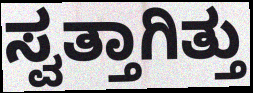
ಸ್ವತ್ತಾಗಿತ್ತು